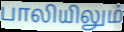
பாலியிலும்